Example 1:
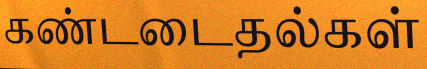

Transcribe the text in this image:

கண்டடைதல்கள்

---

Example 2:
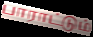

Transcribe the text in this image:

பாராட்டும்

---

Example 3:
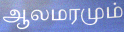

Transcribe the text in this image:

ஆலமரமும்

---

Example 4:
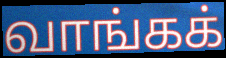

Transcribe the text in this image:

வாங்கக்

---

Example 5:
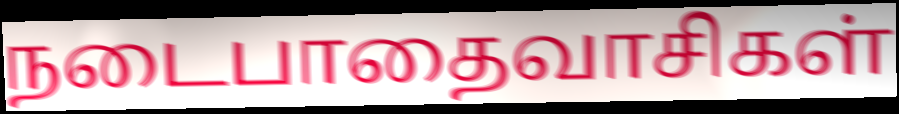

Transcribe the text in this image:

நடைபாதைவாசிகள்